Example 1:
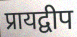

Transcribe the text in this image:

प्रायद्वीप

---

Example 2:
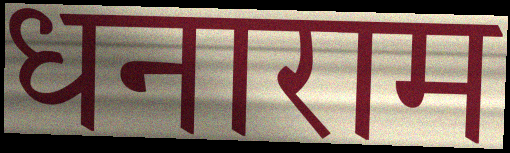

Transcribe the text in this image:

धनाराम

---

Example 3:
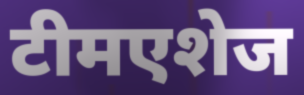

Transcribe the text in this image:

टीमएशेज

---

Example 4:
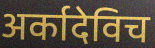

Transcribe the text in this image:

अर्कादेविच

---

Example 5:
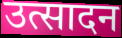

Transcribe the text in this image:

उत्सादन